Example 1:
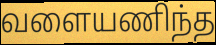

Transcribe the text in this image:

வளையணிந்த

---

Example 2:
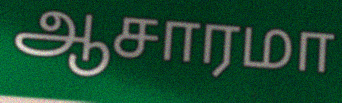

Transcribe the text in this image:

ஆசாரமா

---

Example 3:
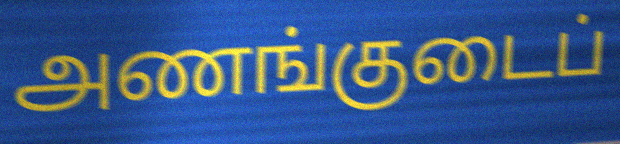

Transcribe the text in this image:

அணங்குடைப்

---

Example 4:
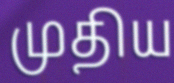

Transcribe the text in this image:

முதிய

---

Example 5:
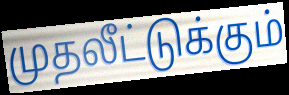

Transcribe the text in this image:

முதலீட்டுக்கும்